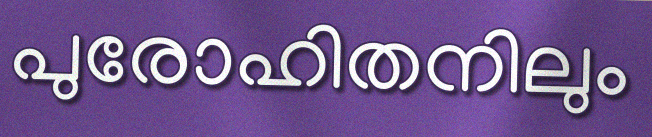
പുരോഹിതനിലും